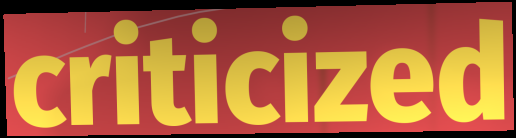
criticized